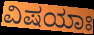
ವಿಷಯಾಃ